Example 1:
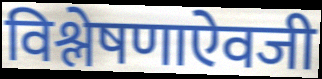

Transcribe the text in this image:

विश्लेषणाऐवजी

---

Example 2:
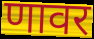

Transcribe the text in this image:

णावर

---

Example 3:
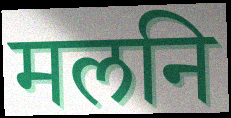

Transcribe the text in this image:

मलनि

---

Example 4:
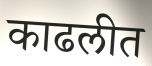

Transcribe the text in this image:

काढलीत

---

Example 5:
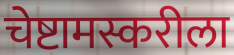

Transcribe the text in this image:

चेष्टामस्करीला